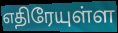
எதிரேயுள்ள